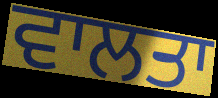
ਵਾਲਤਾ